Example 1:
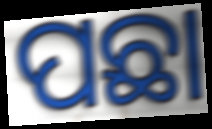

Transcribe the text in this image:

ପଛା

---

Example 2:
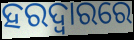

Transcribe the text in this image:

ହରଦ୍ୱାରରେ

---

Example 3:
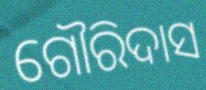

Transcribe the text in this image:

ଗୌରିଦାସ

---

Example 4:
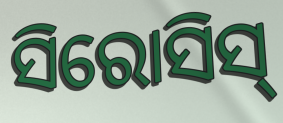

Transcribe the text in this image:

ସିରୋସିସ୍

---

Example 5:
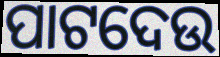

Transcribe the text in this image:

ପାଟଦେଉ